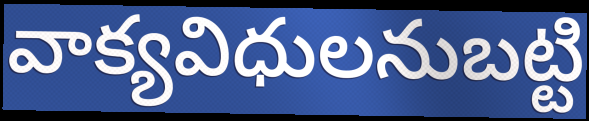
వాక్యవిధులనుబట్టి